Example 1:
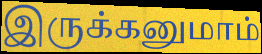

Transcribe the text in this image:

இருக்கனுமாம்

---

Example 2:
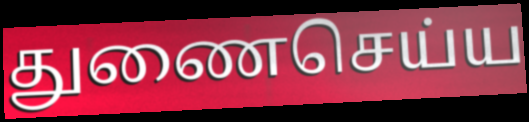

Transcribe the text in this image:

துணைசெய்ய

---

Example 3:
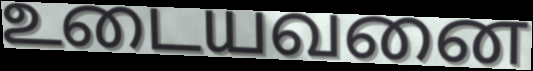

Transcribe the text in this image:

உடையவனை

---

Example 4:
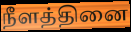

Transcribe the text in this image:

நீளத்தினை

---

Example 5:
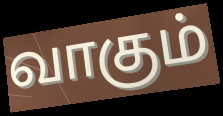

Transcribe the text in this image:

வாகும்